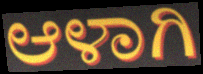
ಆಳಾಗಿ